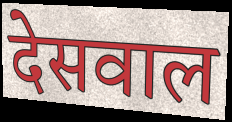
देसवाल